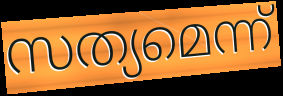
സത്യമെന്ന്